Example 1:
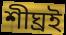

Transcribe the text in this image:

শীঘ্ৰই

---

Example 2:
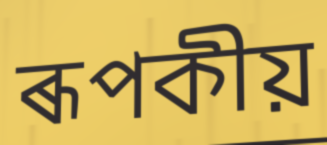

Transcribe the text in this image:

ৰূপকীয়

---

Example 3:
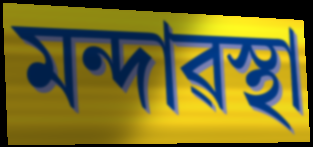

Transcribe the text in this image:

মন্দাৱস্থা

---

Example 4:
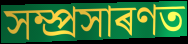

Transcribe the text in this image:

সম্প্ৰসাৰণত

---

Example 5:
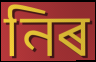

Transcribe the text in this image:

নিৰ